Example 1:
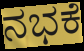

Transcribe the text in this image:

ನಭಕೆ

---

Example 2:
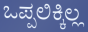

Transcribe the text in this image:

ಒಪ್ಪಲಿಕ್ಕಿಲ್ಲ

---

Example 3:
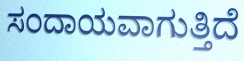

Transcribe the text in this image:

ಸಂದಾಯವಾಗುತ್ತಿದೆ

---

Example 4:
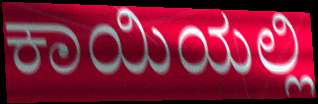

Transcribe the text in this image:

ಕಾಯಿಯಲ್ಲಿ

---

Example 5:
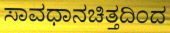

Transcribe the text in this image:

ಸಾವಧಾನಚಿತ್ತದಿಂದ